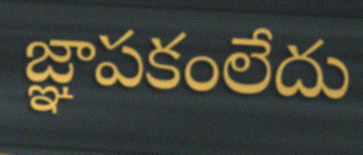
జ్ఞాపకంలేదు